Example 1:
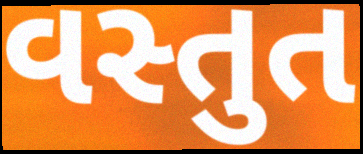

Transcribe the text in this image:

વસ્તુત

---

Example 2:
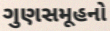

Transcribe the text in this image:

ગુણસમૂહનો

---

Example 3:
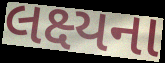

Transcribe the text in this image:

લક્ષ્યના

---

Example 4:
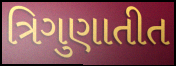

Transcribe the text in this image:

ત્રિગુણાતીત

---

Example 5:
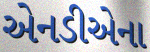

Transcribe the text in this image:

એનડીએના